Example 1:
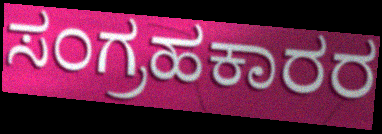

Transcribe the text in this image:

ಸಂಗ್ರಹಕಾರರ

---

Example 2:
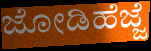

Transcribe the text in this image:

ಜೋಡಿಹೆಜ್ಜೆ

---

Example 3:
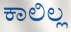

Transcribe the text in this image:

ಕಾಲಿಲ್ಲ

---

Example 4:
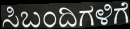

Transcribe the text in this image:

ಸಿಬಂದಿಗಳಿಗೆ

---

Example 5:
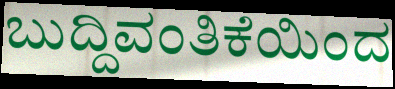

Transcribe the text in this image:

ಬುದ್ದಿವಂತಿಕೆಯಿಂದ